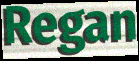
Regan